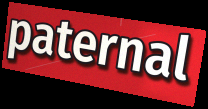
paternal